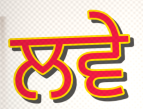
ਲਵੇ